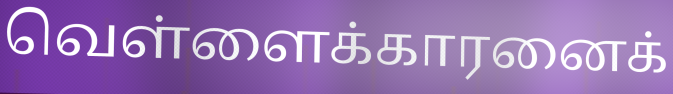
வெள்ளைக்காரனைக்